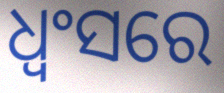
ଧ୍ଵଂସରେ